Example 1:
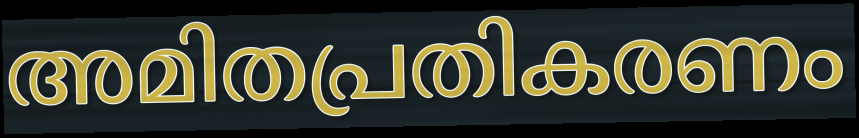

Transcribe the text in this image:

അമിതപ്രതികരണം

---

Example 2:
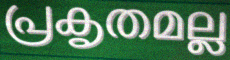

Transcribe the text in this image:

പ്രകൃതമല്ല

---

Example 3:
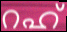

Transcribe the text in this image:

റഹ്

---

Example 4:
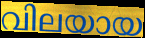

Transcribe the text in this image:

വിലയായ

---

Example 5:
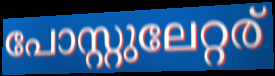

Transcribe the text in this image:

പോസ്റ്റുലേറ്റര്